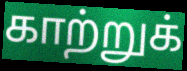
காற்றுக்